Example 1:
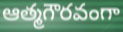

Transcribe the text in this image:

ఆత్మగౌరవంగా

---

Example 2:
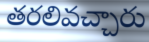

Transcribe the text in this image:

తరలివచ్చారు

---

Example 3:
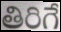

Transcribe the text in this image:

తిరిగే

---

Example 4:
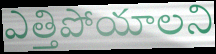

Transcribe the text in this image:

ఎత్తిపోయాలని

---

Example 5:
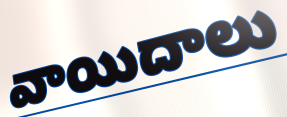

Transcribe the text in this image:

వాయిదాలు